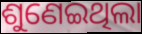
ଶୁଣେଇଥିଲା